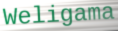
Weligama